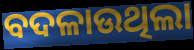
ବଦଳାଉଥିଲା